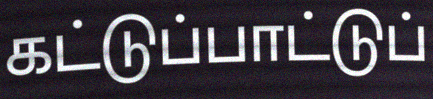
கட்டுப்பாட்டுப்